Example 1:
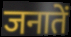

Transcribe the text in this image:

जनातें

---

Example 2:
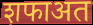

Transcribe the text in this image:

शफाअत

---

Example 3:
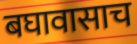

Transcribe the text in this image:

बघावासाच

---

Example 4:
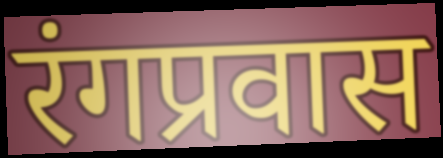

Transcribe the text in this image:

रंगप्रवास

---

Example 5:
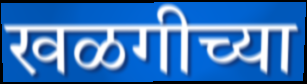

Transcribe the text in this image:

खळगीच्या